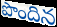
పొందిన